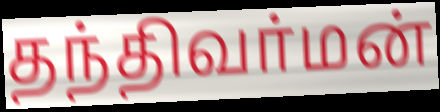
தந்திவர்மன்